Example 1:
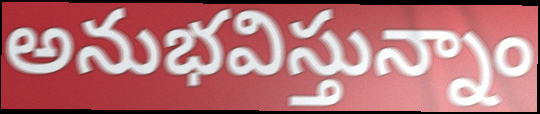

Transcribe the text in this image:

అనుభవిస్తున్నాం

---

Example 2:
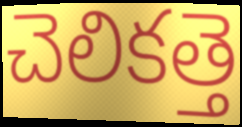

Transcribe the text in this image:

చెలికత్తె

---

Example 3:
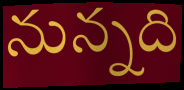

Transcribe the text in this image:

నున్నది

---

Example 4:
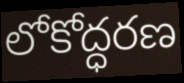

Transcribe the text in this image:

లోకోద్ధరణ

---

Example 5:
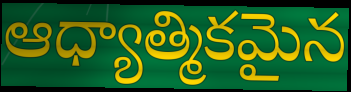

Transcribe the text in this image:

ఆధ్యాత్మికమైన